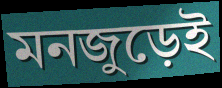
মনজুড়েই